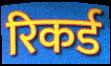
रिकर्ड